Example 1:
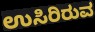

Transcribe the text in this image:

ಉಸಿರಿರುವ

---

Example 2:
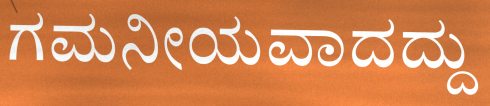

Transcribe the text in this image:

ಗಮನೀಯವಾದದ್ದು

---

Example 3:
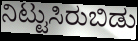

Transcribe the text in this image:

ನಿಟ್ಟುಸಿರುಬಿಡು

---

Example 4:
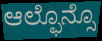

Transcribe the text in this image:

ಆಲ್ಫೊನ್ಸೊ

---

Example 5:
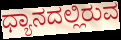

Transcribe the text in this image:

ಧ್ಯಾನದಲ್ಲಿರುವ